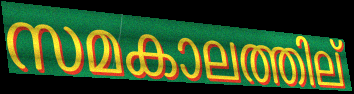
സമകാലത്തില്